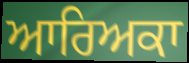
ਆਰਿਅਕਾ